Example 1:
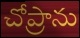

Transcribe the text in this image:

చోప్రాను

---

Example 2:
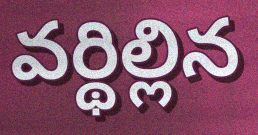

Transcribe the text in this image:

వర్థిల్లిన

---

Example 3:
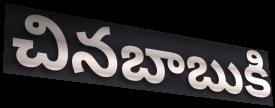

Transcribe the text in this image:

చినబాబుకి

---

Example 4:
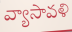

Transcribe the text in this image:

వ్యాసావళి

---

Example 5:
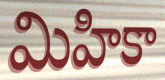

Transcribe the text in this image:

మిహికా